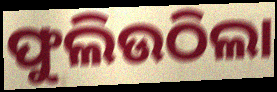
ଫୁଲିଉଠିଲା